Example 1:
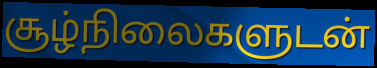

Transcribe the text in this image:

சூழ்நிலைகளுடன்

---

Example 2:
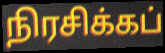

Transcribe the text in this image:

நிரசிக்கப்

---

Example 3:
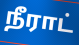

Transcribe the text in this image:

நீராட்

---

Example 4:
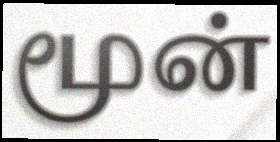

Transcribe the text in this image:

மூன்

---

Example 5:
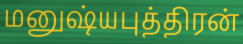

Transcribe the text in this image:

மனுஷ்யபுத்திரன்